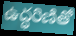
ఉద్ధరిణితో